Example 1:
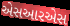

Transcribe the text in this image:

એસઆરએસ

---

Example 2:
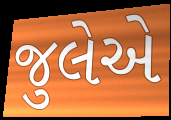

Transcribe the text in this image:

જુલેએ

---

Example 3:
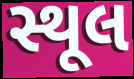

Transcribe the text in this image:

સ્થૂલ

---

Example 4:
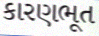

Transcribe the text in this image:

કારણભૂત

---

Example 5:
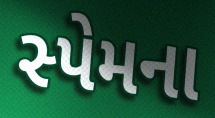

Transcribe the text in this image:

સ્પેમના